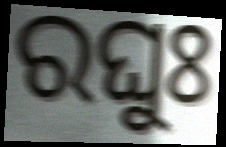
ରଘୁଃ